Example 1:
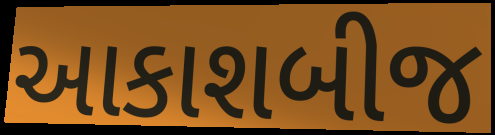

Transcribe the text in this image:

આકાશબીજ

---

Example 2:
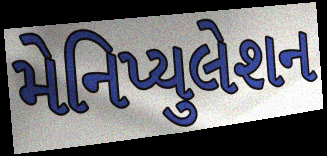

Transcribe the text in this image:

મેનિપ્યુલેશન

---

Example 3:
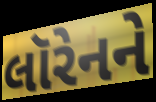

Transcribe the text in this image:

લૉરેનને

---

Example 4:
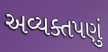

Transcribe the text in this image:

અવ્યક્તપણું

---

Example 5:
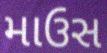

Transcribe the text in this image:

માઉસ